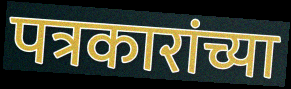
पत्रकारांच्या